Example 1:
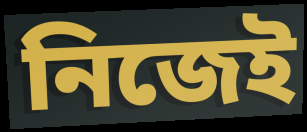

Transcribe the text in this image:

নিজেই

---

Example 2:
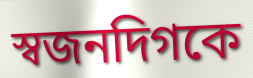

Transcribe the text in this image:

স্বজনদিগকে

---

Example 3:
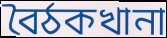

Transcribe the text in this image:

বৈঠকখানা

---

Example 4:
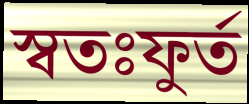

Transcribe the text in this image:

স্বতঃফুর্ত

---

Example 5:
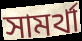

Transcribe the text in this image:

সামর্থা